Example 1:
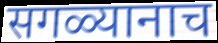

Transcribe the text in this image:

सगळ्यानाच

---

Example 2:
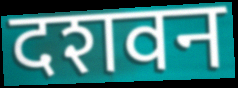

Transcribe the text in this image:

दशवन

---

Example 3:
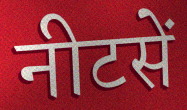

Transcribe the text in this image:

नीटसें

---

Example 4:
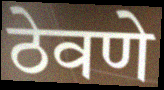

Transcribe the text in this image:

ठेवणे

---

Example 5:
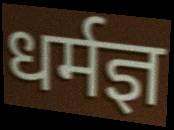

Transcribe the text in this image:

धर्मज्ञ